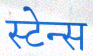
स्टेन्स